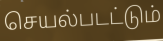
செயல்படட்டும்